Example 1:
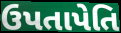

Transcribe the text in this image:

ઉપતાપેતિ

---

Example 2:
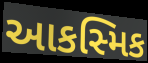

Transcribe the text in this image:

આકસ્મિક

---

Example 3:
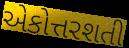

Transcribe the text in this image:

એકોત્તરશતી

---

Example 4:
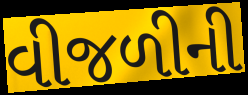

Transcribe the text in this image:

વીજળીની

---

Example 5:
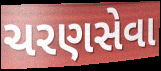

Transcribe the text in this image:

ચરણસેવા